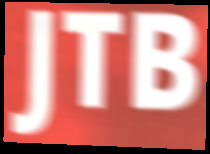
JTB